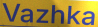
Vazhka